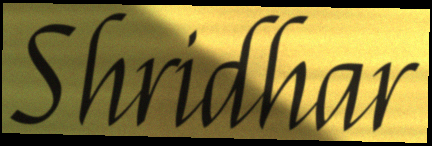
Shridhar